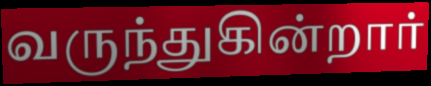
வருந்துகின்றார்